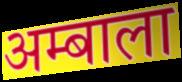
अम्‍बाला